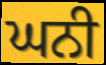
ਘਨੀ